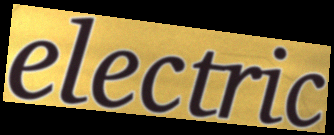
electric